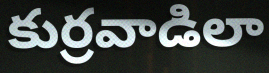
కుర్రవాడిలా